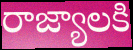
రాజ్యాలకి